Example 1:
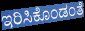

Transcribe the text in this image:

ಇರಿಸಿಕೊಂಡಂತೆ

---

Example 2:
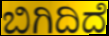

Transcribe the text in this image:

ಬಿಗಿದಿದೆ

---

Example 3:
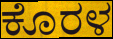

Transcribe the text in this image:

ಕೊರಳ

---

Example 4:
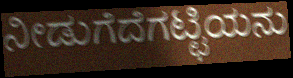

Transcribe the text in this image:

ನೀಡುಗೆದೆಗಟ್ಟಿಯನು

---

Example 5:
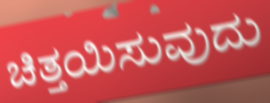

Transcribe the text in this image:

ಚಿತ್ತಯಿಸುವುದು